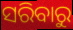
ସରିବାରୁ